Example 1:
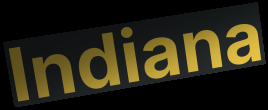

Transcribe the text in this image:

Indiana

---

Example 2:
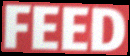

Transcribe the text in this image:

FEED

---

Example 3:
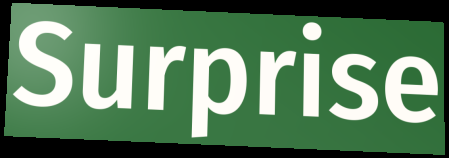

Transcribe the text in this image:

Surprise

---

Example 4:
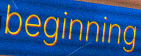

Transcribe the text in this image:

beginning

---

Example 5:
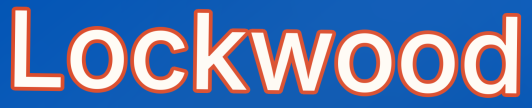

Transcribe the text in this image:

Lockwood